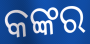
କଙ୍କର